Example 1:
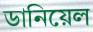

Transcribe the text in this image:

ডানিয়েল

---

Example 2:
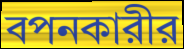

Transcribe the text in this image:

বপনকারীর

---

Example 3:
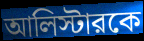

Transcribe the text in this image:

আলিস্টারকে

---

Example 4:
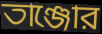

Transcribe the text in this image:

তাঞ্জোর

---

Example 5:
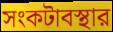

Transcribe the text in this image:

সংকটাবস্থার